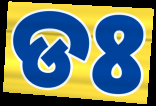
ଡଃ